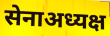
सेनाअध्यक्ष